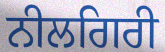
ਨੀਲਗਿਰੀ